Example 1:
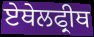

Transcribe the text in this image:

ਏਥੇਲਫ੍ਰੀਥ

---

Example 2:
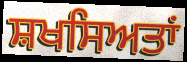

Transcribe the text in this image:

ਸ਼ਖਸਿਅਤਾਂ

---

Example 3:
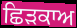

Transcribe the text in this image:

ਛਿੜਕਾਅ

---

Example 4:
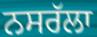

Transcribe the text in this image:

ਨਸਰੱਲਾ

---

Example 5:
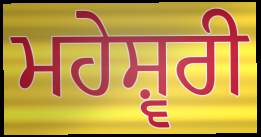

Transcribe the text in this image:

ਮਹੇਸ਼੍ਵਰੀ